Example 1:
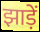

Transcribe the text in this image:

झाड़ें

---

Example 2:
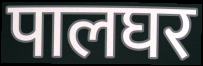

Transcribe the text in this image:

पालघर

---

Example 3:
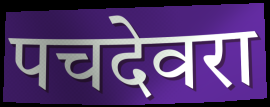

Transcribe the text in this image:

पचदेवरा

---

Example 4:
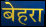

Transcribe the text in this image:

बेहरा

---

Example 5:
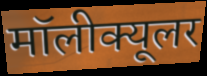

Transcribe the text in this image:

मॉलीक्यूलर